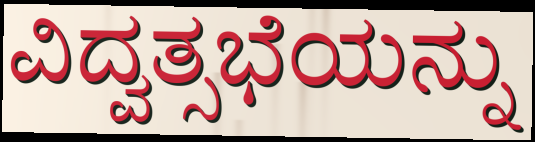
ವಿದ್ವತ್ಸಭೆಯನ್ನು